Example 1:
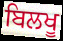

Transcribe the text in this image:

ਬਿਲਖੂ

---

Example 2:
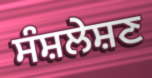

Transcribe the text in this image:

ਸੰਸ਼ਲੇਸ਼ਣ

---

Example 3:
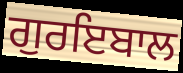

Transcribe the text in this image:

ਗੁਰਇਬਾਲ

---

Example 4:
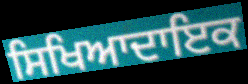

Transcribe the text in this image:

ਸਿਖਿਆਦਾਇਕ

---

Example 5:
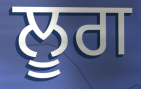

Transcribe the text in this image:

ਲੂਗ